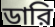
ডারি